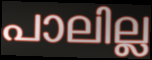
പാലില്ല